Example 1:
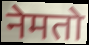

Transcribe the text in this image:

नेमतो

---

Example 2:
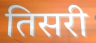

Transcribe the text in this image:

तिसरी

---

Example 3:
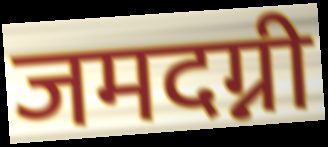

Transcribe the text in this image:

जमदग्नी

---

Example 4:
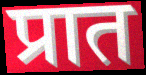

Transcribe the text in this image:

प्रात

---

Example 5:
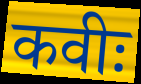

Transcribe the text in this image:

कवीः